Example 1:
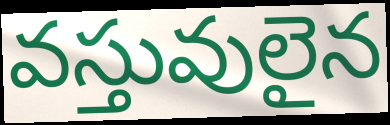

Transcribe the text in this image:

వస్తువులైన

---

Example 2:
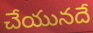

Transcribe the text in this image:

చేయునదే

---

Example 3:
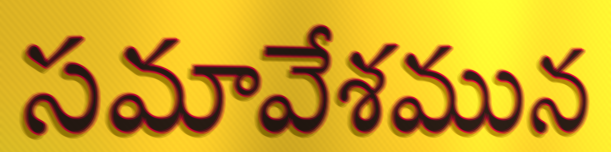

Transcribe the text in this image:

సమావేశమున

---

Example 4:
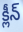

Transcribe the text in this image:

క్లీన్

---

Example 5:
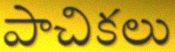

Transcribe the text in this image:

పాచికలు